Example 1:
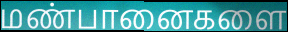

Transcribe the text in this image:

மண்பானைகளை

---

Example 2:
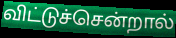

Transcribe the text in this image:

விட்டுச்சென்றால்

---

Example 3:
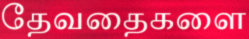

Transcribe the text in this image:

தேவதைகளை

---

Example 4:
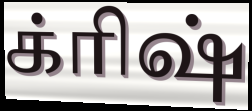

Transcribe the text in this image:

க்ரிஷ்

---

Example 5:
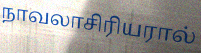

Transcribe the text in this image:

நாவலாசிரியரால்